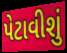
પેટાવીશું